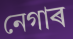
নেগাৰ